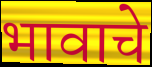
भावाचे